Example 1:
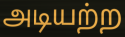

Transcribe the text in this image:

அடியற்ற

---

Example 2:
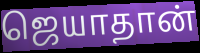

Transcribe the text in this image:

ஜெயாதான்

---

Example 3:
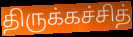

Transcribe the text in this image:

திருக்கச்சித்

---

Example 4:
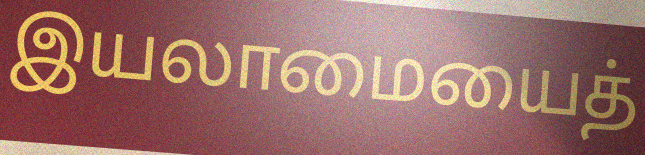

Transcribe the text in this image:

இயலாமையைத்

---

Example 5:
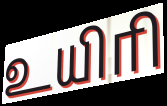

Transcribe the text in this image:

உயிரி